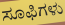
ಸೂಫಿಗಳು